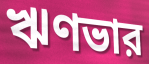
ঋণভার